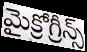
మైక్రోగ్రీన్స్